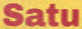
Satu